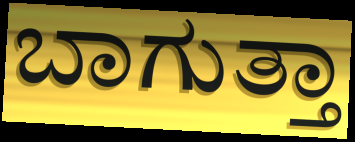
ಬಾಗುತ್ತಾ